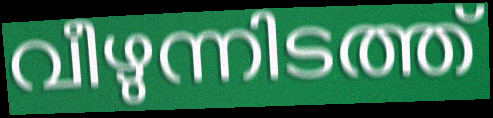
വീഴുന്നിടത്ത്